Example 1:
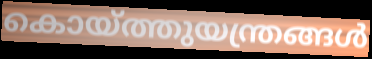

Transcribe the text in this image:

കൊയ്ത്തുയന്ത്രങ്ങൾ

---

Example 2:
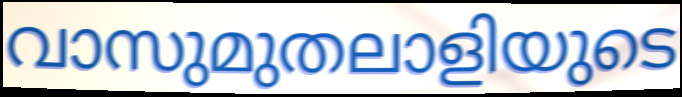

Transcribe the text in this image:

വാസുമുതലാളിയുടെ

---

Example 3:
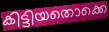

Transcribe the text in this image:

കിട്ടിയതൊക്കെ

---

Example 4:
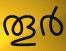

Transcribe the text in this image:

തൂർ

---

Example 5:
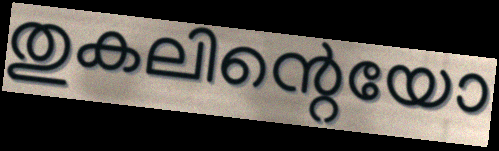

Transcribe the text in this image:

തുകലിന്റെയോ